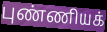
புண்ணியக்